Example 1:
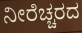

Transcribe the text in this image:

ನೀರೆಚ್ಚರದ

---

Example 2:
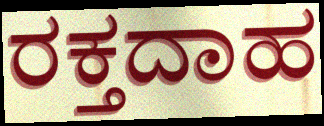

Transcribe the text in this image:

ರಕ್ತದಾಹ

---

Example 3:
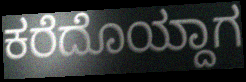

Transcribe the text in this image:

ಕರೆದೊಯ್ದಾಗ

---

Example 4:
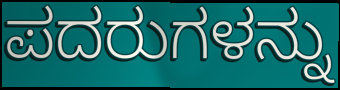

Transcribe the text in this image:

ಪದರುಗಳನ್ನು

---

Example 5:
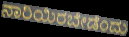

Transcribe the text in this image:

ನಾರಿಯಿರಬೇಡೆಂದು